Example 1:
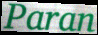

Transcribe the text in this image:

Paran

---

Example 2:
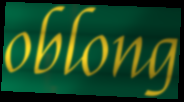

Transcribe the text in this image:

oblong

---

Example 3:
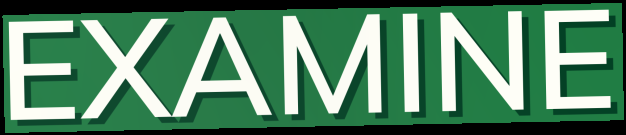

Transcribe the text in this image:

EXAMINE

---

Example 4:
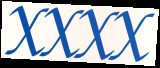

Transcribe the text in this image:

xxxx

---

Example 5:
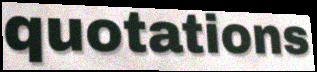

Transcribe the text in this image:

quotations